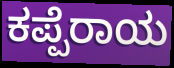
ಕಪ್ಪೆರಾಯ